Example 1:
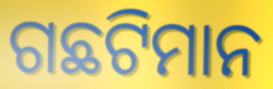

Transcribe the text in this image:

ଗଛଟିମାନ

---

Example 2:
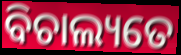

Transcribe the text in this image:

ବିଚାଲ୍ୟତେ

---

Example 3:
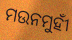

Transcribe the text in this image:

ମଉନମୁହୀଁ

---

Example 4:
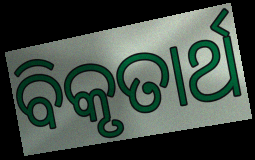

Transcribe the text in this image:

ବିକୃତାର୍ଥ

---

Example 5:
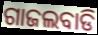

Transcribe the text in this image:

ଗାଜଲବାଡି